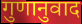
गुणानुवाद